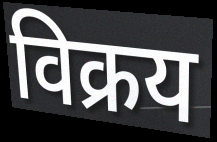
विक्रय